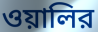
ওয়ালির